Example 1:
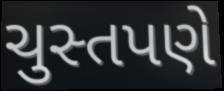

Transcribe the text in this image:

ચુસ્તપણે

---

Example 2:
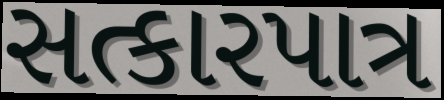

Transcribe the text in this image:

સત્કારપાત્ર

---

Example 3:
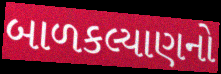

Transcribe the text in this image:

બાળકલ્યાણનો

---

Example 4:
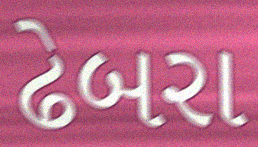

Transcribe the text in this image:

ઢેબરા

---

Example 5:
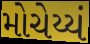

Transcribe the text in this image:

મોચેય્યં